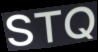
STQ